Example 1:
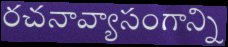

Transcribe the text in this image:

రచనావ్యాసంగాన్ని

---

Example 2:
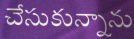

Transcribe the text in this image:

చేసుకున్నాను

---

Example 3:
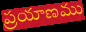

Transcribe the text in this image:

ప్రయాణము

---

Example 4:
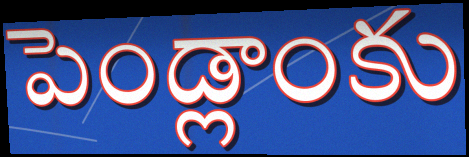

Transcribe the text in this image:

పెండ్లాంకు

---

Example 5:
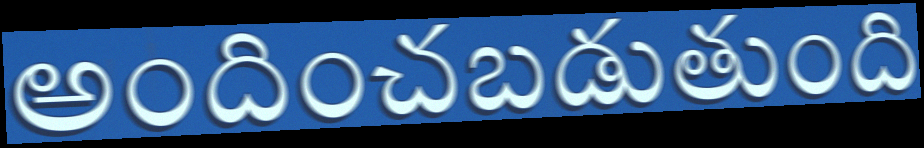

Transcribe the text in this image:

అందించబడుతుంది